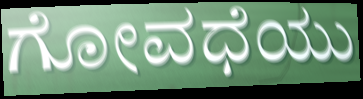
ಗೋವಧೆಯು